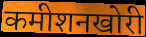
कमीशनखोरी